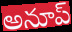
అనూప్